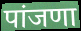
पांजणा